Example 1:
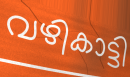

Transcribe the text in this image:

വഴികാട്ടി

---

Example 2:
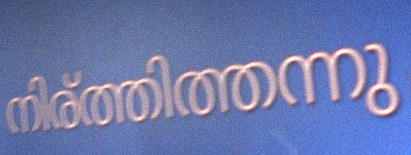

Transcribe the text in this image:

നിര്ത്തിത്തന്നു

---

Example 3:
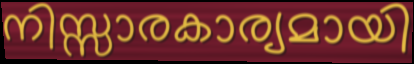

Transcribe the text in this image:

നിസ്സാരകാര്യമായി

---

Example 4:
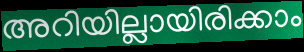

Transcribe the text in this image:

അറിയില്ലായിരിക്കാം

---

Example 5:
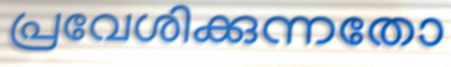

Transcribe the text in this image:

പ്രവേശിക്കുന്നതോ